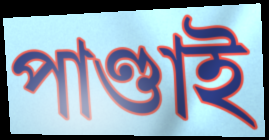
পাণ্ডাই